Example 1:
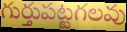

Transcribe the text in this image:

గుర్తుపట్టగలవు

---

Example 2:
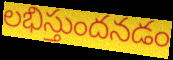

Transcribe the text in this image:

లభిస్తుందనడం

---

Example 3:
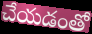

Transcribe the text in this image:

చేయడంతో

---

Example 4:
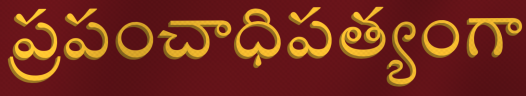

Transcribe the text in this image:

ప్రపంచాధిపత్యంగా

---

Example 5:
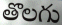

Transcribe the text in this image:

తొలగు